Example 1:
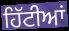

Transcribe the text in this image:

ਹਿੱਟੀਆਂ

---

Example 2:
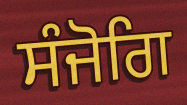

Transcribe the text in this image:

ਸੰਜੋਗਿ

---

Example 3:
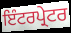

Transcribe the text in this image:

ਇੰਟਰਪ੍ਰੇਟਰ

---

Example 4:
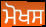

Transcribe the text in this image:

ਮੋਖਸ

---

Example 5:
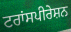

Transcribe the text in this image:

ਟਰਾਂਸਪੀਰੇਸ਼ਨ